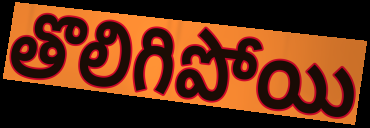
తొలిగిపోయి